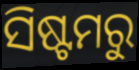
ସିଷ୍ଟମରୁ